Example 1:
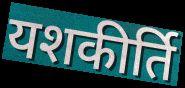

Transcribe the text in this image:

यशकीर्ति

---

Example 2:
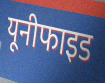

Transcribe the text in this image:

यूनीफाइड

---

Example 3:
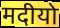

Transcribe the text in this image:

मदीयो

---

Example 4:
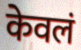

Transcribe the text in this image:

केवलं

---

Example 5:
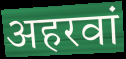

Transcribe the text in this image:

अहरवां